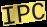
IPC